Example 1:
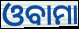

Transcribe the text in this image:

ଓବାମା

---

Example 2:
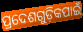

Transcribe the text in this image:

ପ୍ରଦେଶଗୁଡ଼ିକପାଇଁ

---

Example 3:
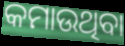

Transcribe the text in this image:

କମାଉଥିବା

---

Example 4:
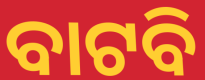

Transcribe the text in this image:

ବାଟବି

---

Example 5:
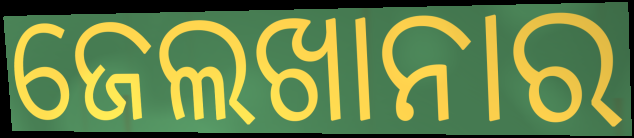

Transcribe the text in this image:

ଜେଲଖାନାର